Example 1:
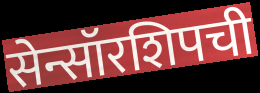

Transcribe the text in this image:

सेन्सॉरशिपची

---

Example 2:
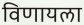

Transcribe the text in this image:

विणायला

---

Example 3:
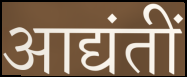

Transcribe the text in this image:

आद्यंतीं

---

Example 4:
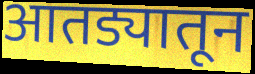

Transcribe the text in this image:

आतड्यातून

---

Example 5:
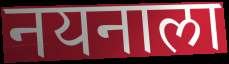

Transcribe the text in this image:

नयनाला